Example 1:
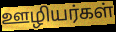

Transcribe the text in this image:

ஊழியர்கள்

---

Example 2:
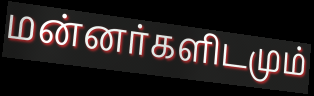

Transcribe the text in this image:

மன்னர்களிடமும்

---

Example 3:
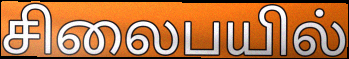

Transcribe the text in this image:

சிலைபயில்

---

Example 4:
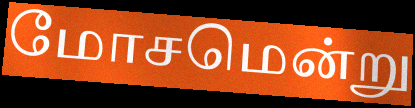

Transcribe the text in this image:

மோசமென்று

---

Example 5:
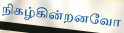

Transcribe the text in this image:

நிகழ்கின்றனவோ